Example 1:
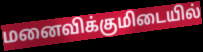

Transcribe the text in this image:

மனைவிக்குமிடையில்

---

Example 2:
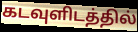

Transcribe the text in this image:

கடவுளிடத்தில்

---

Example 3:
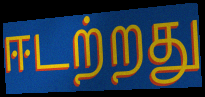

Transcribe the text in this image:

ஈடற்றது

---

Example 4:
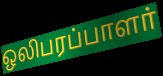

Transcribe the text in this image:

ஒலிபரப்பாளர்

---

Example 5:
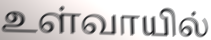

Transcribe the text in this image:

உள்வாயில்